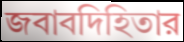
জবাবদিহিতার